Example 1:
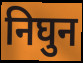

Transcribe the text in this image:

निघुन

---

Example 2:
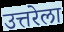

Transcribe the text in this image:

उत्तरेला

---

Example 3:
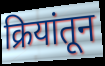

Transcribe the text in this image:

क्रियांतून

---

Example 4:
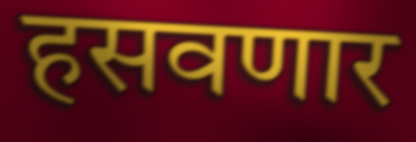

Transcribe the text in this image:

हसवणार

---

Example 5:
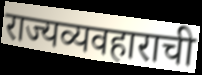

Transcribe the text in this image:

राज्यव्यवहाराची